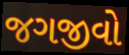
જગજીવો